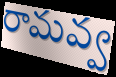
రామవ్వ